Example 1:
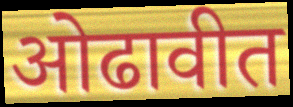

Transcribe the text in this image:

ओढावीत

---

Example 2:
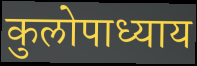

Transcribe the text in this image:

कुलोपाध्याय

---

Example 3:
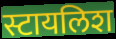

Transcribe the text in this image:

स्टायलिश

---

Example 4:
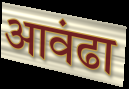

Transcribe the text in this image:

आवंढा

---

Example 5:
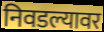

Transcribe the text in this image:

निवडल्यावर